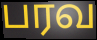
பரவ